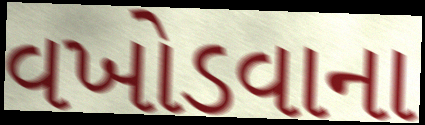
વખોડવાના